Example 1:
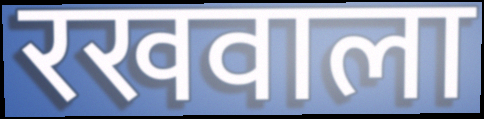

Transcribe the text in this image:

रखवाला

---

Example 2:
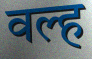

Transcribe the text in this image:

वल्ह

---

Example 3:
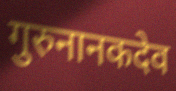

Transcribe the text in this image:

गुरुनानकदेव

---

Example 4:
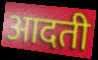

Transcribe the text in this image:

आदती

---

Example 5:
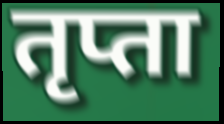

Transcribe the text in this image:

तृप्ता